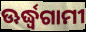
ଊର୍ଦ୍ଧ୍ଵଗାମୀ